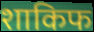
शाकिफ